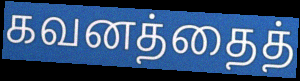
கவனத்தைத்